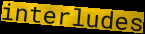
interludes